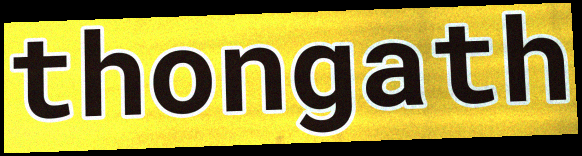
thongath